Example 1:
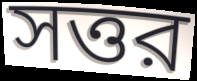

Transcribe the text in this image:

সত্তর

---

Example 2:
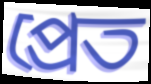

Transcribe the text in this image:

প্রেত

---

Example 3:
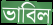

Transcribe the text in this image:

ভাবিল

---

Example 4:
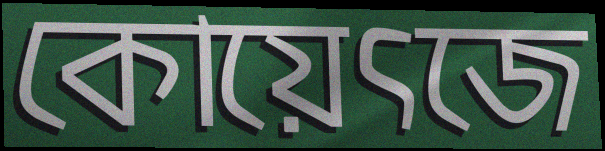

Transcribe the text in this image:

কোয়েৎজে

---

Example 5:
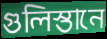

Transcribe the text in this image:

গুলিস্তানে